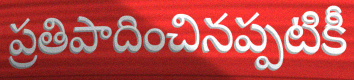
ప్రతిపాదించినప్పటికీ